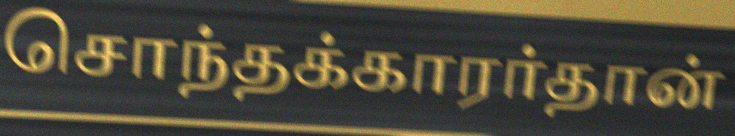
சொந்தக்காரர்தான்